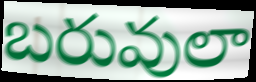
బరువులా